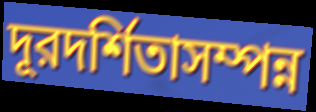
দূরদর্শিতাসম্পন্ন